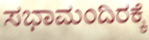
ಸಭಾಮಂದಿರಕ್ಕೆ